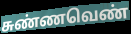
சுண்ணவெண்